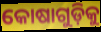
କୋଷାଗୁଡ଼ିକୁ